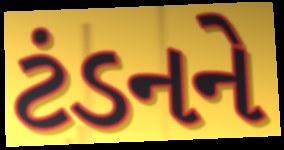
ટંડનને